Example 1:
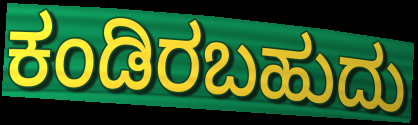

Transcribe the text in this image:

ಕಂಡಿರಬಹುದು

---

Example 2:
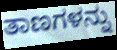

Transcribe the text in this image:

ತಾಣಗಳನ್ನು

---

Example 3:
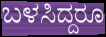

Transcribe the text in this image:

ಬಳಸಿದ್ದರೂ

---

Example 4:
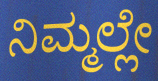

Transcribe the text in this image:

ನಿಮ್ಮಲ್ಲೇ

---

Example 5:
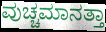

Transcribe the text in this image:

ವುಚ್ಚಮಾನತ್ತಾ